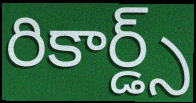
రికార్డ్స్